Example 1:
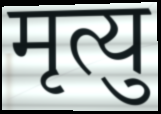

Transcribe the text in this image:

मृत्यु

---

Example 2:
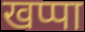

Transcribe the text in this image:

खप्पा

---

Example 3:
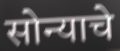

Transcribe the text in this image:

सोन्याचे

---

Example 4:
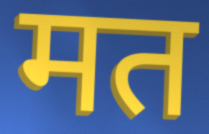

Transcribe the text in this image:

मत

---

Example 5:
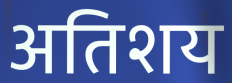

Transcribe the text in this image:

अतिशय